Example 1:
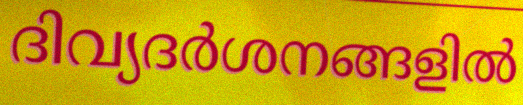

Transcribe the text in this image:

ദിവ്യദർശനങ്ങളിൽ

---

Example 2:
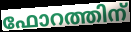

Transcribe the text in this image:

ഫോറത്തിന്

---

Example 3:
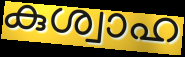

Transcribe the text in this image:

കുശ്വാഹ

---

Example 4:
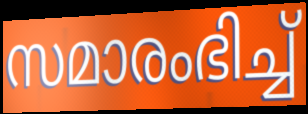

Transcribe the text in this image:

സമാരംഭിച്ച്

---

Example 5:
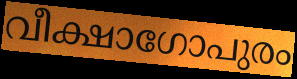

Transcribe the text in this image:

വീക്ഷാഗോപുരം